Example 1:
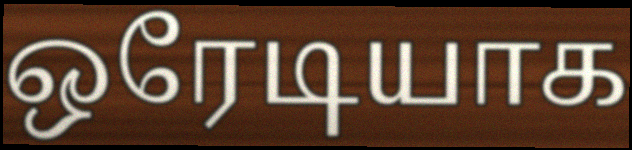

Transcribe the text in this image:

ஒரேடியாக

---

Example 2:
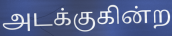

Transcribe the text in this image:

அடக்குகின்ற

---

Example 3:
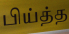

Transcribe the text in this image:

பிய்த்த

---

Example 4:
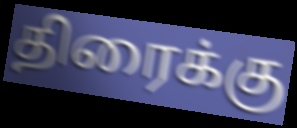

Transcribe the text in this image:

திரைக்கு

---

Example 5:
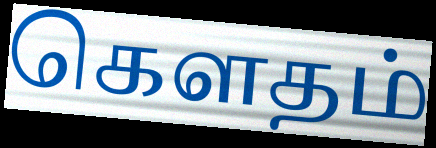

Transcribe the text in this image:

கௌதம்